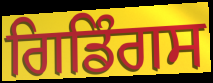
ਗਿਡਿੰਗਸ